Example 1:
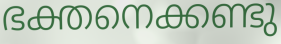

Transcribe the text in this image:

ഭക്തനെക്കണ്ടു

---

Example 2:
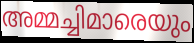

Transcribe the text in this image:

അമ്മച്ചിമാരെയും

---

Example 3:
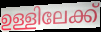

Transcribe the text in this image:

ഉള്ളിലേക്ക്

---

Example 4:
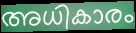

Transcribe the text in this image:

അധികാരം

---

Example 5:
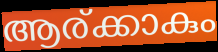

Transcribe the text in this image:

ആര്ക്കാകും